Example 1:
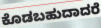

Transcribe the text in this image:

ಕೊಡಬಹುದಾದರೆ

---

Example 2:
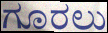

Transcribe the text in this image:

ಗೂರಲು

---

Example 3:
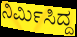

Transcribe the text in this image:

ನಿರ್ಮಿಸಿದ್ದ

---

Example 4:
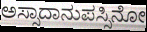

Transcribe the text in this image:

ಅಸ್ಸಾದಾನುಪಸ್ಸಿನೋ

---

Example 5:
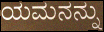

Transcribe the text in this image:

ಯಮನನ್ನು